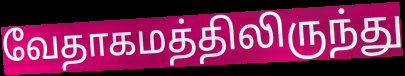
வேதாகமத்திலிருந்து